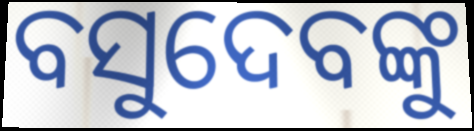
ବସୁଦେବଙ୍କୁ